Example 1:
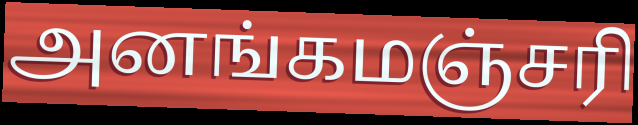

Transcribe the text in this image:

அனங்கமஞ்சரி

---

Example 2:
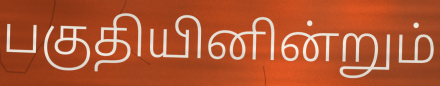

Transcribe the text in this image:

பகுதியினின்றும்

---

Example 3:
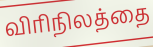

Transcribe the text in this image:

விரிநிலத்தை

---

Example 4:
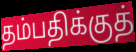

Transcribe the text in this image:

தம்பதிக்குத்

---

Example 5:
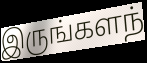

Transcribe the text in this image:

இருங்களந்